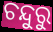
ଚନ୍ଦୁରୁ